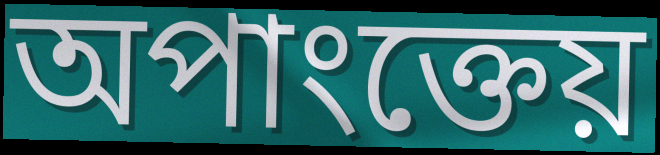
অপাংক্তেয়